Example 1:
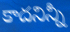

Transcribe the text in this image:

కాదనిన్నీ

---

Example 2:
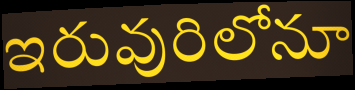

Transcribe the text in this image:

ఇరువురిలోనూ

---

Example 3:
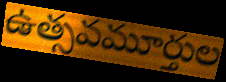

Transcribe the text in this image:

ఉత్సవమూర్తుల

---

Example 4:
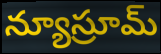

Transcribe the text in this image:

న్యూస్రూమ్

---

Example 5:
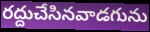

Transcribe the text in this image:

రద్దుచేసినవాడగును